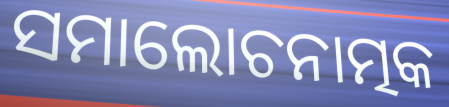
ସମାଲୋଚନାତ୍ମକ